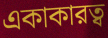
একাকারত্ব